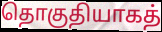
தொகுதியாகத்